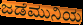
ಜಡೆಮುನಿಯ